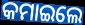
କମାଇଲେ